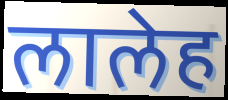
लालेह